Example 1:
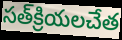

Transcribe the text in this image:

సత్‌క్రియలచేత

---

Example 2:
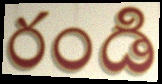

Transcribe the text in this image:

రండి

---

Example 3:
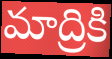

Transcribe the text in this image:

మాద్రికి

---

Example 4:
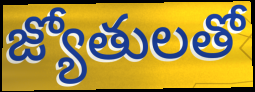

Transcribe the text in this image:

జ్యోతులతో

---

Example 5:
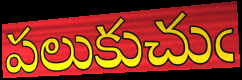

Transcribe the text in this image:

పలుకుచుఁ